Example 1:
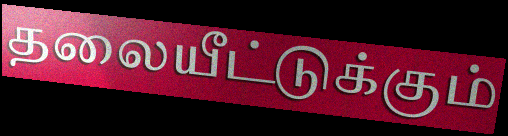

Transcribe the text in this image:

தலையீட்டுக்கும்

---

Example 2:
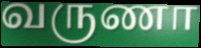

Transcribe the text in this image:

வருணா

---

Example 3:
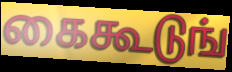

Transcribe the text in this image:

கைகூடுங்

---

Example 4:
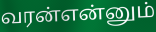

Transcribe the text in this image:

வரன்என்னும்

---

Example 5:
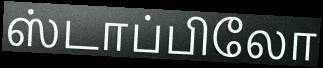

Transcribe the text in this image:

ஸ்டாப்பிலோ